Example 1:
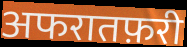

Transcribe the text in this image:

अफरातफ़री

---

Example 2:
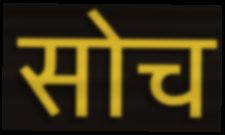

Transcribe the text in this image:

सोच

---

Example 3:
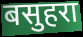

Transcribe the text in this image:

बसुहरा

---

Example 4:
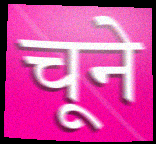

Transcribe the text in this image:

चूने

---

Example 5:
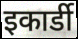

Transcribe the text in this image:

इकार्डी